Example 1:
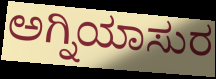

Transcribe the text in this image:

ಅಗ್ನಿಯಾಸುರ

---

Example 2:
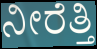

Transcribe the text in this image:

ನೀರೆತ್ತಿ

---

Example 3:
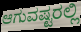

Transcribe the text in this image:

ಆಗುವಷ್ಟರಲ್ಲಿ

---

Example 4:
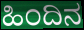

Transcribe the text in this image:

ಹಿಂದಿನ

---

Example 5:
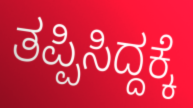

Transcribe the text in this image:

ತಪ್ಪಿಸಿದ್ದಕ್ಕೆ